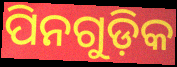
ପିନଗୁଡ଼ିକ